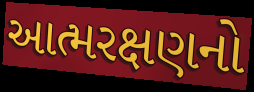
આત્મરક્ષણનો